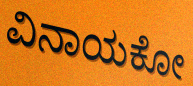
ವಿನಾಯಕೋ